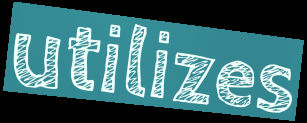
utilizes